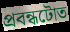
প্ৰবন্ধটোত